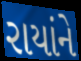
રાયાંને